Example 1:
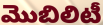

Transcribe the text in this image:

మొబిలిటీ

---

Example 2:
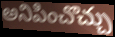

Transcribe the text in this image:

అనిపించొచ్చు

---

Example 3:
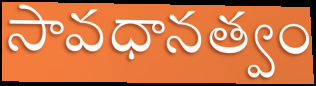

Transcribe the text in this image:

సావధానత్వం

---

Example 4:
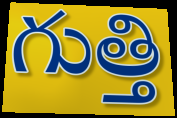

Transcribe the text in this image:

గుత్తి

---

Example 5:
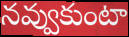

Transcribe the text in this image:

నవ్వుకుంటా